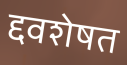
द्दवशेषत